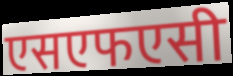
एसएफएसी